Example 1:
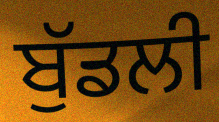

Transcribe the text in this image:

ਬੁੱਡਲੀ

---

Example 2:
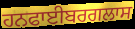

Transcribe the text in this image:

ਹਨਫਾਈਬਰਗਲਾਸ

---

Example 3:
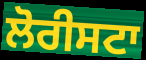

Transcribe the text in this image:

ਲੋਰੀਸਟਾ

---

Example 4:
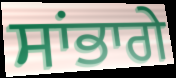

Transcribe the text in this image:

ਸਾਂਭਾਗੇ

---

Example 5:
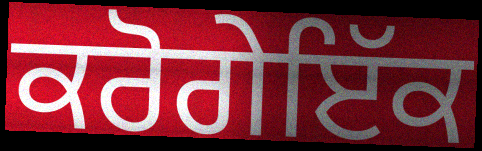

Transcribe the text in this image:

ਕਰੋਗੇਇੱਕ